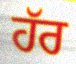
ਹੱਰ